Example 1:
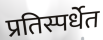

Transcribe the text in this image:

प्रतिस्पर्धेत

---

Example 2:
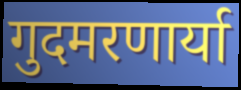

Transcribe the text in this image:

गुदमरणार्या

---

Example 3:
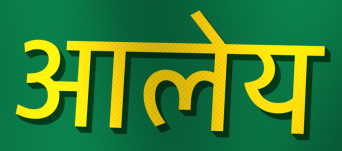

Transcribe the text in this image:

आलेय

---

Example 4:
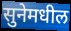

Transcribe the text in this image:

सुनेमधील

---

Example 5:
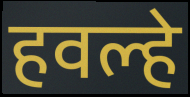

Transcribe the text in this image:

हवल्हे